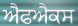
ਐਫਐਕਸ